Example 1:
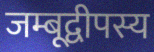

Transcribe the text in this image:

जम्बूद्वीपस्य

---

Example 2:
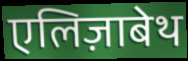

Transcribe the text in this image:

एलिज़ाबेथ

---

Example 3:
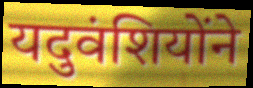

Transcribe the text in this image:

यदुवंशियोंने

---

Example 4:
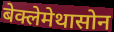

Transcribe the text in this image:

बेक्लेमेथासोन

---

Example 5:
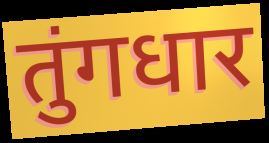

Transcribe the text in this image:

तुंगधार